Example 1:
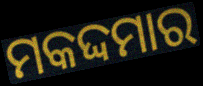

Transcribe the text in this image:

ମକଦ୍ଦମାର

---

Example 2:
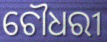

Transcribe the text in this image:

ଚୌଧରୀ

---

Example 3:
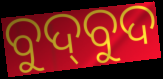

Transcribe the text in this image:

ବୁଦ୍‍ବୁଦ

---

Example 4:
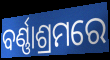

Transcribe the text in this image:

ବର୍ଣ୍ଣାଶ୍ରମରେ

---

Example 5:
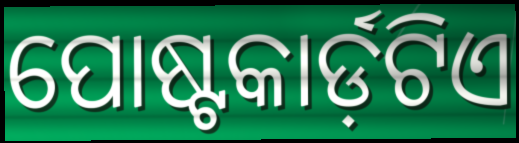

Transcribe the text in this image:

ପୋଷ୍ଟକାର୍ଡ଼ଟିଏ